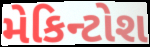
મેકિન્ટોશ